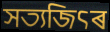
সত্যজিৎৰ